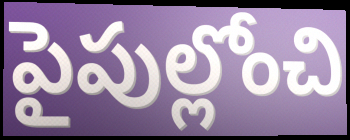
పైపుల్లోంచి